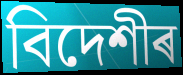
বিদেশীৰ